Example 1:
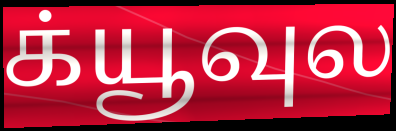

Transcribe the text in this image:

க்யூவுல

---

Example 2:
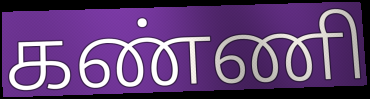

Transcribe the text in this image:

கண்ணி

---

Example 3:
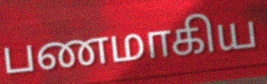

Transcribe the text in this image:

பணமாகிய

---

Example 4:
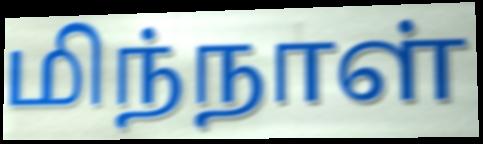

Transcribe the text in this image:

மிந்நாள்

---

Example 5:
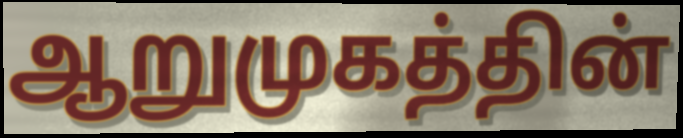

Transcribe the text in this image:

ஆறுமுகத்தின்